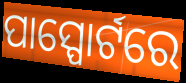
ପାସ୍ପୋର୍ଟରେ